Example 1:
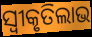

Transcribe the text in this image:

ସ୍ଵୀକୃତିଲାଭ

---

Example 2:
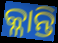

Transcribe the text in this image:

କ୍ଳାନ୍ତି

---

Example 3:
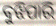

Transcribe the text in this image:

ବୁଝିପାରି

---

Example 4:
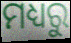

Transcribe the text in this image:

ମଧ୍ୟରୁ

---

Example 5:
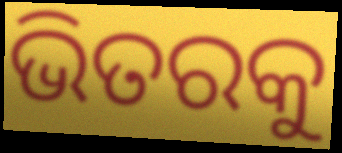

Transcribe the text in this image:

ଭିତରକୁ